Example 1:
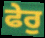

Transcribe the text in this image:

ਫੇਰੁ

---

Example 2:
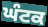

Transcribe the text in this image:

ਘੰਟਕ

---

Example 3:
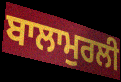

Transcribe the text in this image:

ਬਾਲਾਮੁਰਲੀ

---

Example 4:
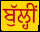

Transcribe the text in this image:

ਬੁੱਲ੍ਹੀਂ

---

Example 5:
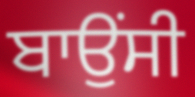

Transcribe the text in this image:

ਬਾਉਂਸੀ